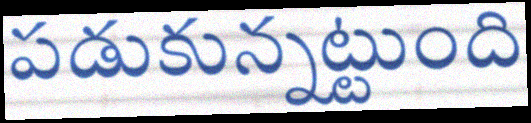
పడుకున్నట్టుంది